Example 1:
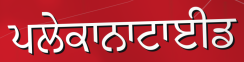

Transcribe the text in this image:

ਪਲੇਕਾਨਾਟਾਈਡ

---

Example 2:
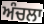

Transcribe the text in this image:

ਅੰਚਲਾ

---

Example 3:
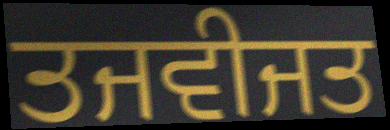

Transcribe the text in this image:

ਤਜਵੀਜਤ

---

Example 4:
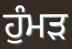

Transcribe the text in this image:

ਹੁੰਮੜ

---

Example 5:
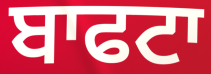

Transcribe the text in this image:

ਬਾਫਟਾ